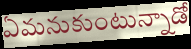
ఏమనుకుంటున్నాడో